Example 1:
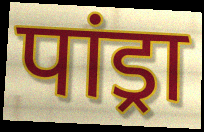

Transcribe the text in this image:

पांड्रा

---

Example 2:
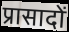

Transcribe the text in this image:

प्रासादों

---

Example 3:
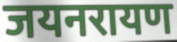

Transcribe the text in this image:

जयनरायण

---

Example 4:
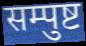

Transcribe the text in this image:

सम्पुष्ट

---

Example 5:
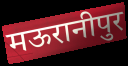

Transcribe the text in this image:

मऊरानीपुर